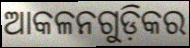
ଆକଳନଗୁଡ଼ିକର